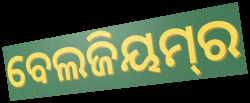
ବେଲଜିୟମ୍‌ର